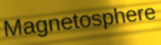
Magnetosphere